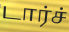
டார்ச்